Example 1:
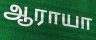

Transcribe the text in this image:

ஆராயா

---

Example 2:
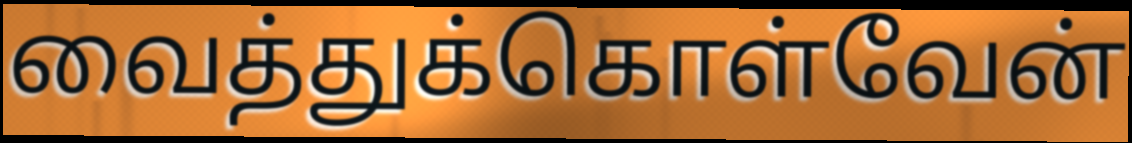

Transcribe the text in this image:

வைத்துக்கொள்வேன்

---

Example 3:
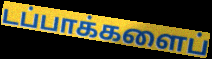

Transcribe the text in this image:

டப்பாக்களைப்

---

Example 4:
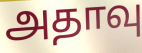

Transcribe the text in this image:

அதாவு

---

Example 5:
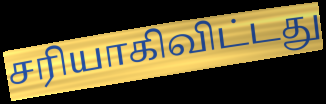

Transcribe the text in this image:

சரியாகிவிட்டது